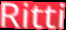
Ritti